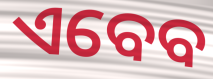
ଏବେବ